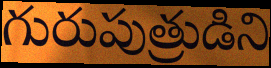
గురుపుత్రుడిని